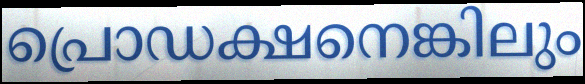
പ്രൊഡക്ഷനെങ്കിലും